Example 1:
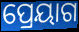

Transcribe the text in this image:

ପ୍ରେୟାଗ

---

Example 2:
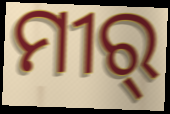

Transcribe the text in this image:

ମୀର୍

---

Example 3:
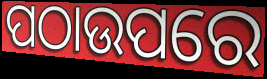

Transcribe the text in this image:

ପଠାଉପରେ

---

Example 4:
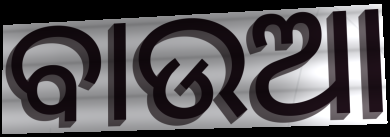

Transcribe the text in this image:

ବାଉଆ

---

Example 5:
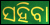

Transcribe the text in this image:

ସହିବା